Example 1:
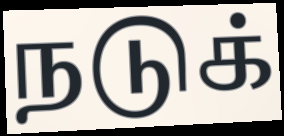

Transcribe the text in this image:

நடுக்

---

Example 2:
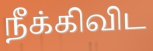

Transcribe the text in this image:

நீக்கிவிட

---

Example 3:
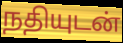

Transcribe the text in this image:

நதியுடன்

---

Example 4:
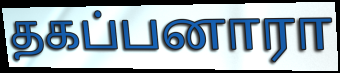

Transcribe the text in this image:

தகப்பனாரா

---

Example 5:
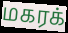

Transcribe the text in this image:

மகரக்